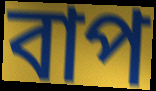
বাপ